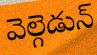
వెల్గెడున్